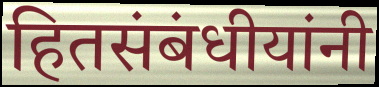
हितसंबंधीयांनी